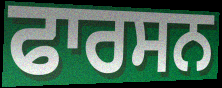
ਫਾਰਸਨ